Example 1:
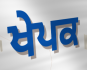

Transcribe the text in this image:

ਖੇਪਕ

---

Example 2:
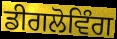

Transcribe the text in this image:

ਡੀਗਲੋਵਿੰਗ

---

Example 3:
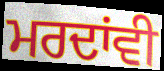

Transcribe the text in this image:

ਮਰਦਾਂਵੀ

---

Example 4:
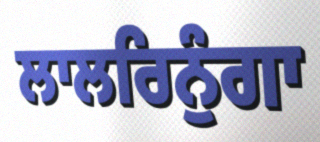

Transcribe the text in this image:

ਲਾਲਰਿਨੁੰਗਾ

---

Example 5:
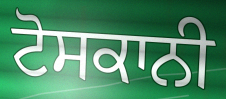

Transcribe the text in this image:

ਟੋਸਕਾਨੀ